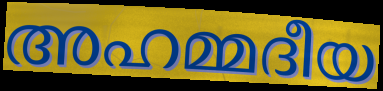
അഹമ്മദീയ